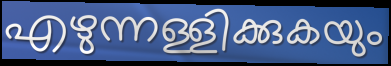
എഴുന്നള്ളിക്കുകയും